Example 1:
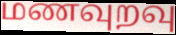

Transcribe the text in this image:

மணவுறவு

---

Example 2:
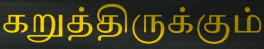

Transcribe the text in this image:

கறுத்திருக்கும்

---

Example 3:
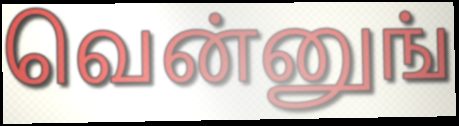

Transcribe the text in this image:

வென்னுங்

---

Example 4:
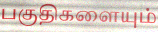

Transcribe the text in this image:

பகுதிகளையும்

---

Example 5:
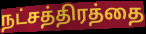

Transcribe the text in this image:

நட்சத்திரத்தை